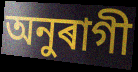
অনুৰাগী